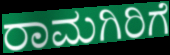
ರಾಮಗಿರಿಗೆ